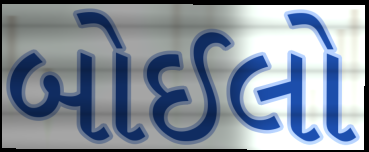
બોઈલો